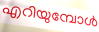
എറിയുമ്പോൾ